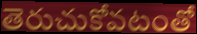
తెరుచుకోవటంతో